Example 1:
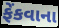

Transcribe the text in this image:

ફેંકવાના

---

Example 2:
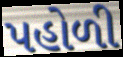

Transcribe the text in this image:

પહોળી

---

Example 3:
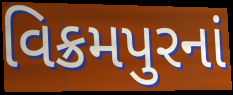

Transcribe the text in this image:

વિક્રમપુરનાં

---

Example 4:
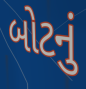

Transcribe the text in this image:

બોટનું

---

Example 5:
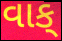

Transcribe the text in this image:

વાક્